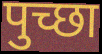
पुच्छा